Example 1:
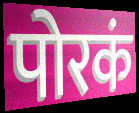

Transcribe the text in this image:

पोरकं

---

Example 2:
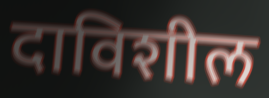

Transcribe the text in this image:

दाविशील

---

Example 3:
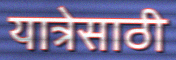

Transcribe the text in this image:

यात्रेसाठी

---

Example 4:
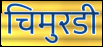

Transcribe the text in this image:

चिमुरडी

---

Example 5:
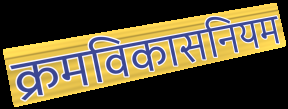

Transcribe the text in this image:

क्रमविकासनियम